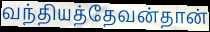
வந்தியத்தேவன்தான்